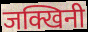
जक्खिनी